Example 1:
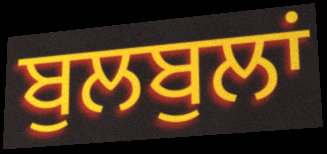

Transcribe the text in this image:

ਬੁਲਬੁਲਾਂ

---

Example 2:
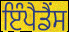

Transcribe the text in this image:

ਇੰਪੈਡੈਂਸ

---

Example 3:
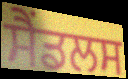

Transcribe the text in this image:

ਸੈਂਡਲਸ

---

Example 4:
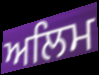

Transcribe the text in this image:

ਅਲਿਮ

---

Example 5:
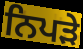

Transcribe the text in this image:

ਨਿਪੜੇ